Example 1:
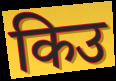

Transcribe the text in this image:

किउ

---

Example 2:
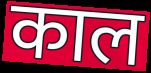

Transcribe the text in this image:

काल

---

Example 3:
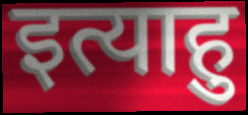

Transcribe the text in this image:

इत्याहु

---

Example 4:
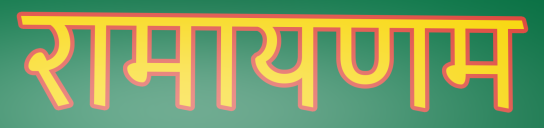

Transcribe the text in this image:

रामायणम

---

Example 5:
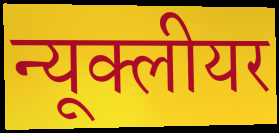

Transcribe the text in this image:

न्यूक्लीयर